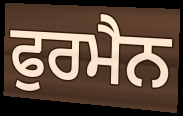
ਫੁਰਮੈਨ